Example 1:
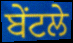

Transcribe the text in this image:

ਬੇਂਟਲੇ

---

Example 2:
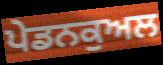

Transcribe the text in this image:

ਪੇਡਨਕੁਅਲ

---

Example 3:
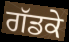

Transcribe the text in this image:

ਗੱਡਕੇ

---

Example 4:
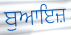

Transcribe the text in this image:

ਬੁਆਇਜ਼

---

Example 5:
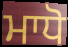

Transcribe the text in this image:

ਮਾਧੋ